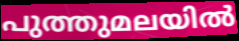
പുത്തുമലയിൽ